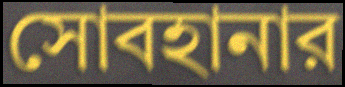
সোবহানার